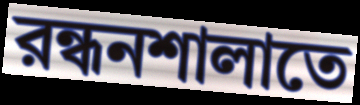
রন্ধনশালাতে